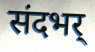
संदभर्